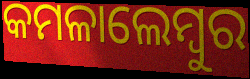
କମଳାଲେମ୍ବୁର